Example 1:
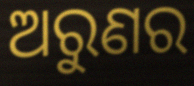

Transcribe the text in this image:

ଅରୁଣର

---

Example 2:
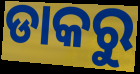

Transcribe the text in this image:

ଡାକରୁ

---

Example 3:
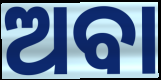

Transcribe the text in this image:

ଅବା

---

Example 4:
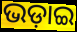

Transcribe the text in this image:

ଭଡ଼ାଇ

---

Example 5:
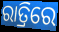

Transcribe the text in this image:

ରାତ୍ରିରେ